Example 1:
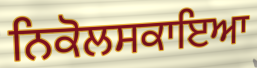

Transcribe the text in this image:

ਨਿਕੋਲਸਕਾਇਆ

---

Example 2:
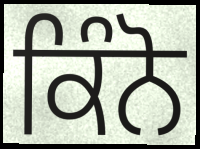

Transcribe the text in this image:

ਕਿੰਨੋ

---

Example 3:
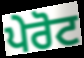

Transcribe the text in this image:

ਪੇਰੋਟ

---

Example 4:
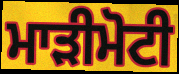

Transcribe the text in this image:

ਮਾੜੀਮੋਟੀ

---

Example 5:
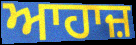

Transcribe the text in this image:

ਆਹਾਜ਼